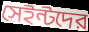
সেইন্টদের